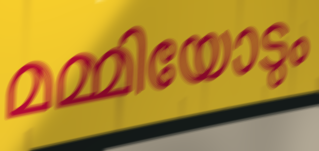
മമ്മിയോടും